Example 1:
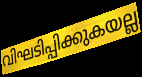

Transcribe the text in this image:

വിഘടിപ്പിക്കുകയല്ല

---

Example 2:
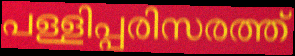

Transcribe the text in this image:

പള്ളിപ്പരിസരത്ത്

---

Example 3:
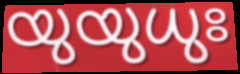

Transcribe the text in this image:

യുയുധുഃ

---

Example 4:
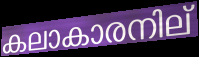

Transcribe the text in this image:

കലാകാരനില്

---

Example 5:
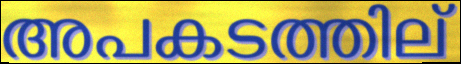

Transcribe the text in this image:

അപകടത്തില്